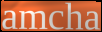
amcha